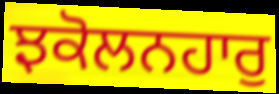
ਝਕੋਲਨਹਾਰੁ